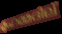
മുഹമ്മദില്